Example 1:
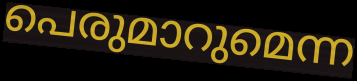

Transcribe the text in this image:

പെരുമാറുമെന്ന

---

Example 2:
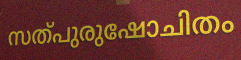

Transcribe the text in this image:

സത്പുരുഷോചിതം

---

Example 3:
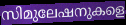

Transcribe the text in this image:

സിമുലേഷനുകളെ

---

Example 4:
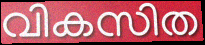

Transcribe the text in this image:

വികസിത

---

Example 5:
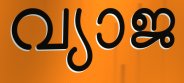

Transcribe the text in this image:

വ്യാജ